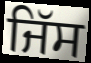
ਜਿੱਸ